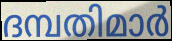
ദമ്പതിമാർ